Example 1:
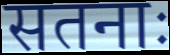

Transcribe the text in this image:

सतनाः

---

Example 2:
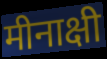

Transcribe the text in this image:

मीनाक्षी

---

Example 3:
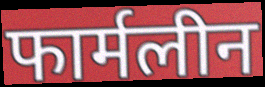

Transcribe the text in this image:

फार्मलीन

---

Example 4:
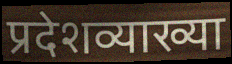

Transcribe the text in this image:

प्रदेशव्याख्या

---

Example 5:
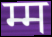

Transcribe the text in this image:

म्म